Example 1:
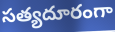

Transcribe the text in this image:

సత్యదూరంగా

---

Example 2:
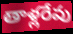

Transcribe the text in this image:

తాళ్లరేవు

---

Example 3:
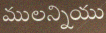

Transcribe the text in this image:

ములన్నియు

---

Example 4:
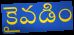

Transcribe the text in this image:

కైవడిం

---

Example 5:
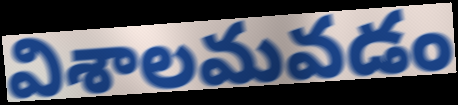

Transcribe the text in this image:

విశాలమవడం